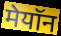
मेयॉन